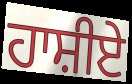
ਹਾਸ਼ੀਏ